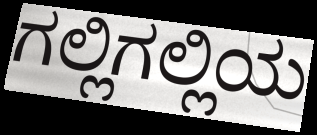
ಗಲ್ಲಿಗಲ್ಲಿಯ